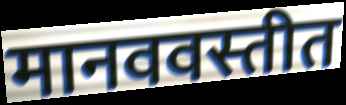
मानववस्तीत